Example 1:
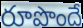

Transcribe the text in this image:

రూపొందే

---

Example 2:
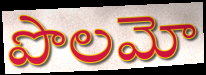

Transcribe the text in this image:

పొలమో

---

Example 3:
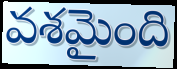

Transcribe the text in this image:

వశమైంది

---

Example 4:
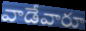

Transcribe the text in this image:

వాడేవారూ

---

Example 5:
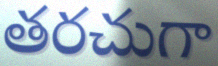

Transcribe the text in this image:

తరచుగా